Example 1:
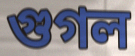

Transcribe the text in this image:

গুগল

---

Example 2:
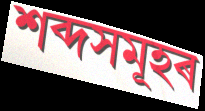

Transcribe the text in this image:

শব্দসমূহৰ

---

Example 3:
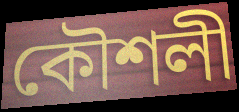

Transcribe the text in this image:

কৌশলী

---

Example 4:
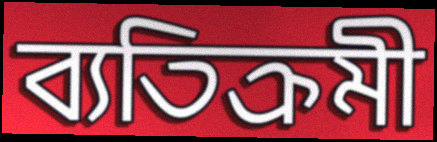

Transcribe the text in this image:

ব্যতিক্ৰমী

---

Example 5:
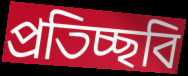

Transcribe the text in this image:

প্ৰতিচ্ছবি